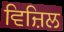
ਵਿਜ਼ਿਲ